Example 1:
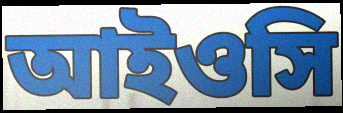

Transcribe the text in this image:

আইওসি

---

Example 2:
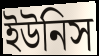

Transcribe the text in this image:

ইউনিস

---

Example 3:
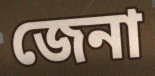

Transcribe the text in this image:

জেনা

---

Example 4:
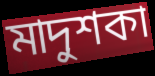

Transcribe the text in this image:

মাদুশকা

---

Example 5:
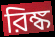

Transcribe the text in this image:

রিঙ্ক